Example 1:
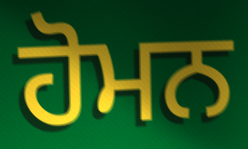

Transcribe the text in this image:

ਹੋਮਨ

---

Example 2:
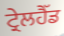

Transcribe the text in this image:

ਟ੍ਰੇਲਹੈੱਡ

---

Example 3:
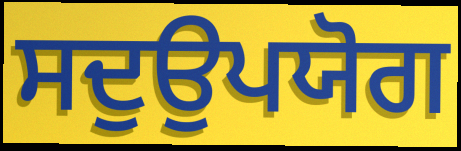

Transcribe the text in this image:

ਸਦੁਉਪਯੋਗ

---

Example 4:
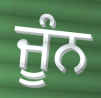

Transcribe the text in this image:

ਜੂੰਨ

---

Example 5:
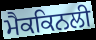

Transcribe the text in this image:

ਮੈਕਕਿਨਲੀ